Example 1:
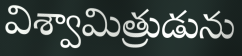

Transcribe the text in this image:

విశ్వామిత్రుడును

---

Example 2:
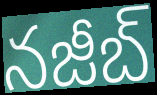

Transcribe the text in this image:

నజీబ్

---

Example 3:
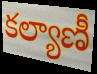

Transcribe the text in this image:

కల్యాణీ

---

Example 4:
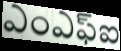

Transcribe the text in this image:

ఎంఎఫ్ఐ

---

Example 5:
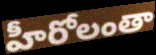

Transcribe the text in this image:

హీరోలంతా